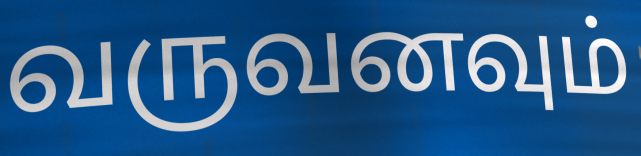
வருவனவும்